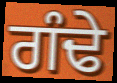
ਗੰਢੇ